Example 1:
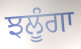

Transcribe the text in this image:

ਝਲੂੰਗਾ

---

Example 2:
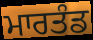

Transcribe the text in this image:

ਮਾਰਤੰਡ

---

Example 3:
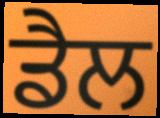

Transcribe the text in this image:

ਡੈਲ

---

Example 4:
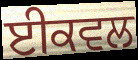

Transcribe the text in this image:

ਈਕਵਲ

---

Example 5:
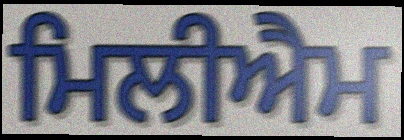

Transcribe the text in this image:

ਮਿਲੀਐਮ